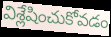
విశ్లేషించుకోవడం